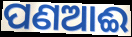
ପଣଆଈ